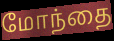
மோந்தை